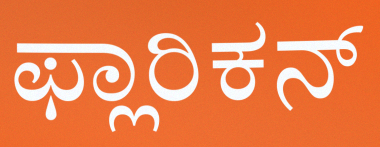
ಫ್ಲಾರಿಕನ್